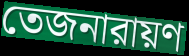
তেজনারায়ণ